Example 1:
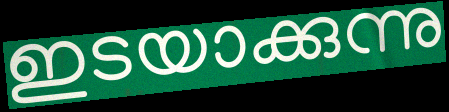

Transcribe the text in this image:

ഇടയാക്കുന്നു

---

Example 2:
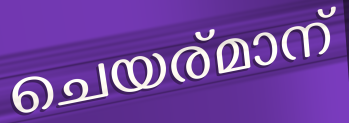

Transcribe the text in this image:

ചെയര്മാന്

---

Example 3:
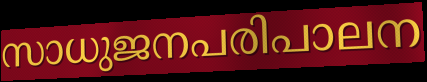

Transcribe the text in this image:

സാധുജനപരിപാലന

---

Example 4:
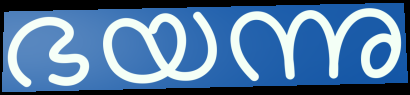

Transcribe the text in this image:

ഭയന്നു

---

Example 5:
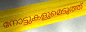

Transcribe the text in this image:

നോട്ടുകളുമെടുത്ത്